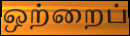
ஒற்றைப்